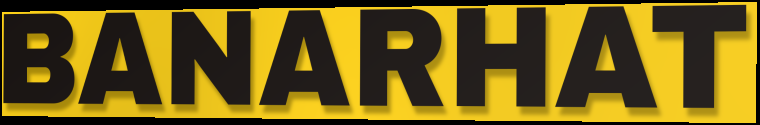
BANARHAT